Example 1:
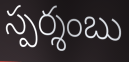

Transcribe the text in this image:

స్పర్శంబు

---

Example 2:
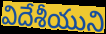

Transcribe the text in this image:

విదేశీయుని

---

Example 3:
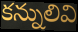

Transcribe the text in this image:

కన్నులివి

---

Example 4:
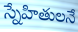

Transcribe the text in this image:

స్నేహితులనే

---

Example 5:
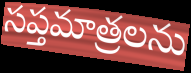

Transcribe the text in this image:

సప్తమాత్రలను